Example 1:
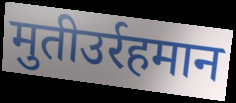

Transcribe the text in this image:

मुतीउर्रहमान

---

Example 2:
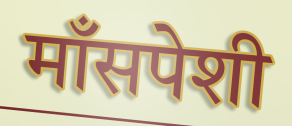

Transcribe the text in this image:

माँसपेशी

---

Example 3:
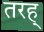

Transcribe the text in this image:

तरह्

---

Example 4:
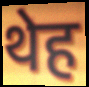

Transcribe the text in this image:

थेह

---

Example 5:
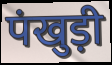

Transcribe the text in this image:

पंखुड़ी